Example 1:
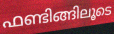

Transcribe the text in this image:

ഫണ്ടിങ്ങിലൂടെ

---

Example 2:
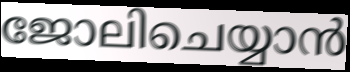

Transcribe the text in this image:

ജോലിചെയ്യാൻ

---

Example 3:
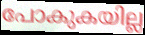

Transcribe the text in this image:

പോകുകയില്ല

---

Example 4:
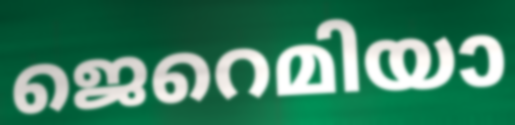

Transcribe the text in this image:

ജെറെമിയാ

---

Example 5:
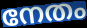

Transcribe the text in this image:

നേതം